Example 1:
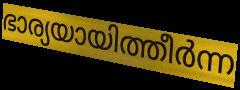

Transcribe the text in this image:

ഭാര്യയായിത്തീർന്ന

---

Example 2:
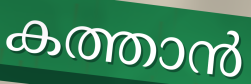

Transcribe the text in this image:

കത്താൻ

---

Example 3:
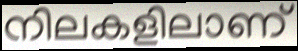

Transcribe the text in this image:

നിലകളിലാണ്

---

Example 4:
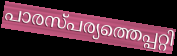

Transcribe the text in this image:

പാരസ്പര്യത്തെപ്പറ്റി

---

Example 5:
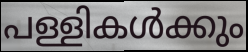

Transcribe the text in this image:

പള്ളികൾക്കും